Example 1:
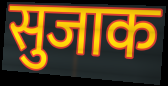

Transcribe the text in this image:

सुजाक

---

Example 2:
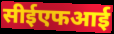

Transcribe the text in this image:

सीईएफआई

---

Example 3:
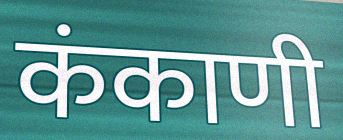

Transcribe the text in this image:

कंकाणी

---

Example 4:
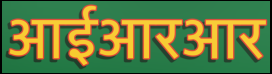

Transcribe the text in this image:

आईआरआर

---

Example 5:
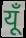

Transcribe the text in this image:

यूँ